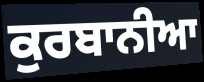
ਕੁਰਬਾਨੀਆ